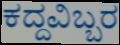
ಕದ್ದವಿಬ್ಬರ